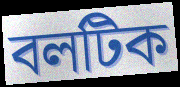
বলটিক